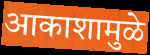
आकाशामुळे